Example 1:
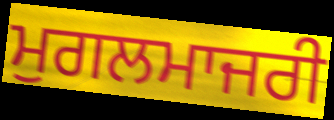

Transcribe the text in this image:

ਮੁਗਲਮਾਜਰੀ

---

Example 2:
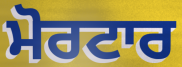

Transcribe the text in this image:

ਮੋਰਟਾਰ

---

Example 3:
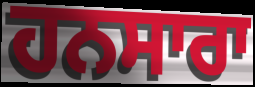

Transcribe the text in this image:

ਹਨਸਾਰਾ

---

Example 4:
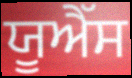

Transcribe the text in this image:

ਯੂਐੱਸ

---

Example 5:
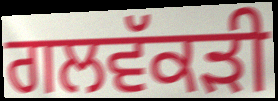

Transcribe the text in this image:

ਗਲਵੱਕਡ਼ੀ